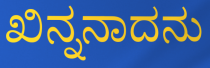
ಖಿನ್ನನಾದನು